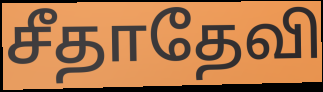
சீதாதேவி